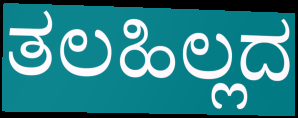
ತಲಹಿಲ್ಲದ